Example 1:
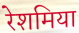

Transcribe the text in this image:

रेशमिया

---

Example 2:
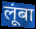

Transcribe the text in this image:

लूंबा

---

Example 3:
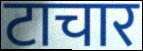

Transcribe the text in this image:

टाचार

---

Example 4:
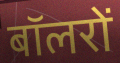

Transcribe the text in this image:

बॉलरों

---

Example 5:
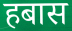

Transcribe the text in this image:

हबास